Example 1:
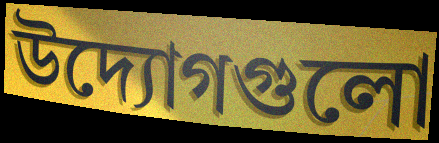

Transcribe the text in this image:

উদ্যোগগুলো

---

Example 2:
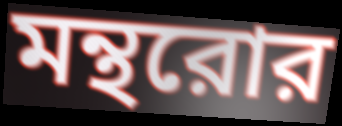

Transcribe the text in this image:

মন্থরোর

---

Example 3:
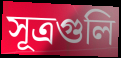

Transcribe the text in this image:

সূত্রগুলি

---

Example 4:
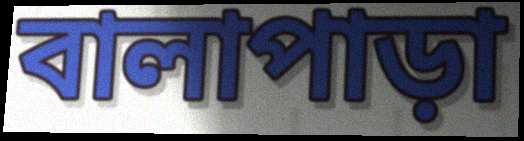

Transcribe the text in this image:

বালাপাড়া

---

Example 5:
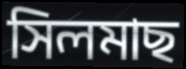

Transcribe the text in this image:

সিলমাছ